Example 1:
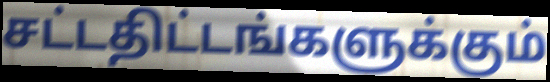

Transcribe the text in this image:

சட்டதிட்டங்களுக்கும்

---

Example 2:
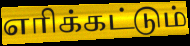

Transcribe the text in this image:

எரிக்கட்டும்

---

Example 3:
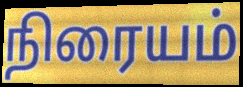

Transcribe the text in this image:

நிரையம்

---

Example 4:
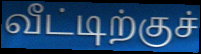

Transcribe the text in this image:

வீட்டிற்குச்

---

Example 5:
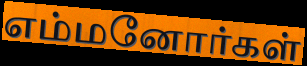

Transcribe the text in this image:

எம்மனோர்கள்